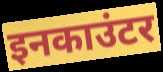
इनकाउंटर